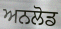
ਅਨਲੋਡ